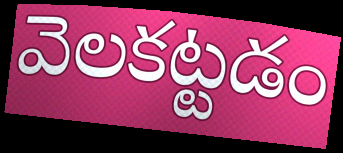
వెలకట్టడం